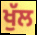
ਖੁੱਲ